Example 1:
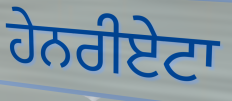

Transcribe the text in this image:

ਹੇਨਰੀਏਟਾ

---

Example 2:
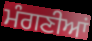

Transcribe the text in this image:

ਮੰਗਣੀਆਂ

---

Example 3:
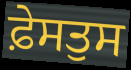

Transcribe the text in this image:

ਫ਼ੇਸਤੁਸ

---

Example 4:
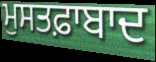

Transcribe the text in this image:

ਮੁਸਤਫ਼ਾਬਾਦ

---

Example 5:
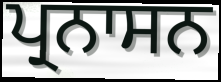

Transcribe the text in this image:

ਪ੍ਰਨਾਸਨ